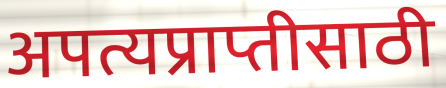
अपत्यप्राप्तीसाठी